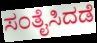
ಸಂತೈಸಿದಡೆ